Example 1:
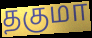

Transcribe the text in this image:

தகுமா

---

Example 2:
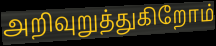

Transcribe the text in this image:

அறிவுறுத்துகிறோம்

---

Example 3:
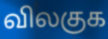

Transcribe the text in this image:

விலகுக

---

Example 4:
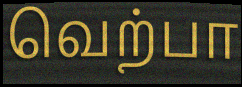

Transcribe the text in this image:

வெற்பா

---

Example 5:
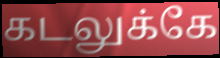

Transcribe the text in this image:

கடலுக்கே